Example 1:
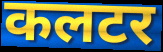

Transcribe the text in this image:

कलटर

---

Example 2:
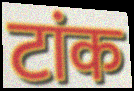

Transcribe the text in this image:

टांक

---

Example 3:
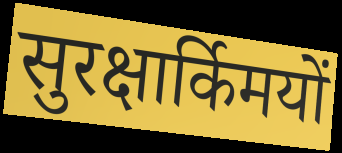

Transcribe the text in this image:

सुरक्षार्किमयों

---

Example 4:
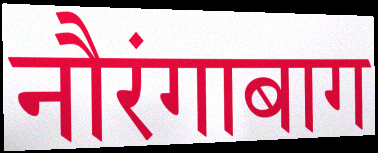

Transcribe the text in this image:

नौरंगाबाग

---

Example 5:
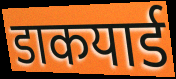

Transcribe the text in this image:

डाकयार्ड